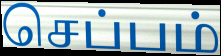
செப்பம்